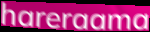
hareraama